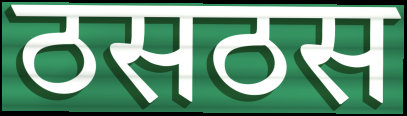
ठसठस